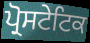
ਪ੍ਰੋਸਟੇਟਿਕ